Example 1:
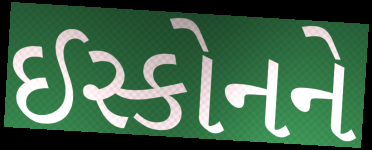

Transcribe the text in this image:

ઈસ્કોનને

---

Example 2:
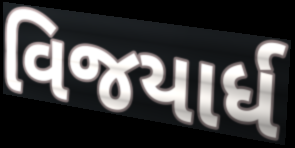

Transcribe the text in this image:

વિજયાર્ધ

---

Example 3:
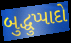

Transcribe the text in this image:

બુદ્ધુપ્પાદો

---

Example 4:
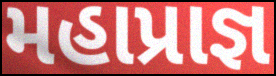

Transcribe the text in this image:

મહાપ્રાજ્ઞ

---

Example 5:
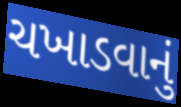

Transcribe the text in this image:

ચખાડવાનું